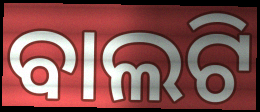
ବାଲଟି